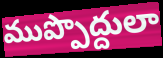
ముప్పొద్దులా